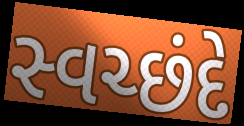
સ્વચ્છંદે